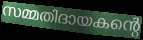
സമ്മതിദായകന്റെ